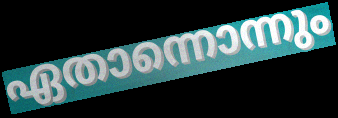
ഏതാന്നൊന്നും